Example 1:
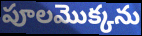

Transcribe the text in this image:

పూలమొక్కను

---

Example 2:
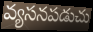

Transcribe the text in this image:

వ్యసనపడుచు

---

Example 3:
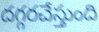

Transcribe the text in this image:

దగ్గరచేస్తుంది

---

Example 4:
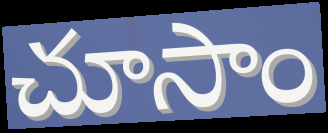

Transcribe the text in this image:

చూసాం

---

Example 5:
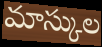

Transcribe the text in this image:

మాస్కుల